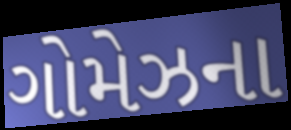
ગોમેઝના